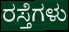
ರಸ್ತೆಗಳು